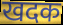
खदक